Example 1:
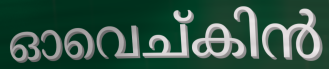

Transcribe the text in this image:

ഓവെച്കിൻ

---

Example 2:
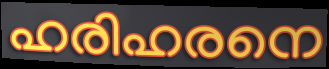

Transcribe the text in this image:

ഹരിഹരനെ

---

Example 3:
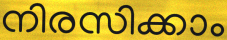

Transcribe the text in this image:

നിരസിക്കാം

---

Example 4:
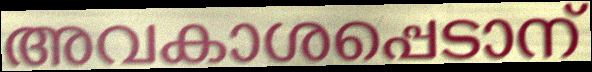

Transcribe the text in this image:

അവകാശപ്പെടാന്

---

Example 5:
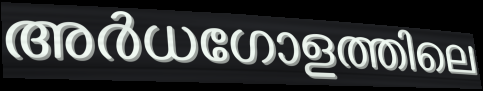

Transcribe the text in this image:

അർധഗോളത്തിലെ